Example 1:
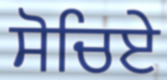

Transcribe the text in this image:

ਸੋਚਿਏ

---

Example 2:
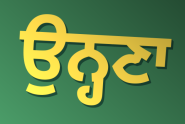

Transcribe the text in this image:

ਉਨ੍ਹਣਾ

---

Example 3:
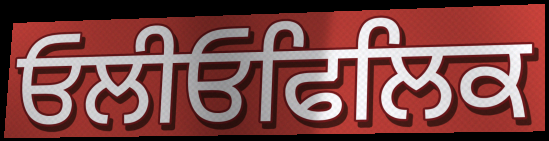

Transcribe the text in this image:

ਓਲੀਓਫਿਲਿਕ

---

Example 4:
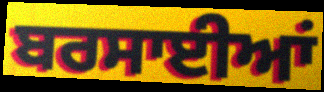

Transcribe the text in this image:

ਬਰਸਾਈਆਂ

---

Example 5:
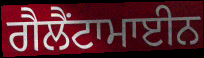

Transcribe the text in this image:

ਗੈਲੈਂਟਾਮਾਈਨ